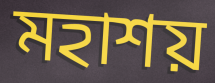
মহাশয়